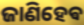
ଜାଣିହେଵ